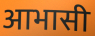
आभासी